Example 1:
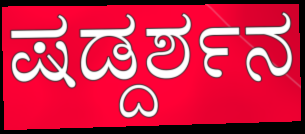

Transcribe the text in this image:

ಷಡ್ದರ್ಶನ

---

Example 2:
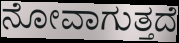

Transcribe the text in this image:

ನೋವಾಗುತ್ತದೆ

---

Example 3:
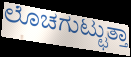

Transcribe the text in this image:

ಲೊಚಗುಟ್ಟುತ್ತಾ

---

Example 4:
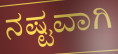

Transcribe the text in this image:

ನಷ್ಟವಾಗಿ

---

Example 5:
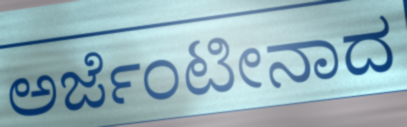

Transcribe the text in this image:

ಅರ್ಜೆಂಟೀನಾದ